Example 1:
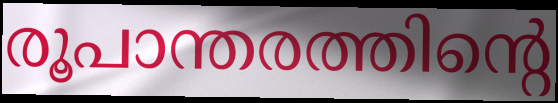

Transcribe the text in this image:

രൂപാന്തരത്തിന്റെ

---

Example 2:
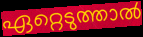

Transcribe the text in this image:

ഏറ്റെടുത്താൽ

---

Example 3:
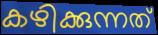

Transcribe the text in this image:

കഴിക്കുന്നത്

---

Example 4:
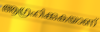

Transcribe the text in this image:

ആഗ്രഹിക്കുകയാണ്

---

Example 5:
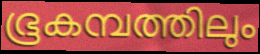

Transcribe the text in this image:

ഭൂകമ്പത്തിലും